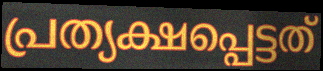
പ്രത്യക്ഷപ്പെട്ടത്